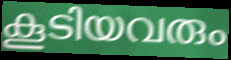
കൂടിയവരും